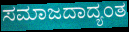
ಸಮಾಜದಾದ್ಯಂತ